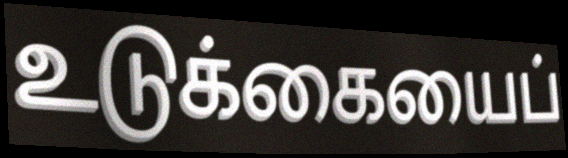
உடுக்கையைப்